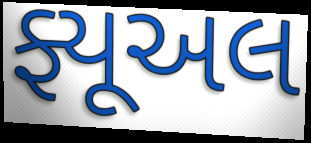
ફ્યૂઅલ